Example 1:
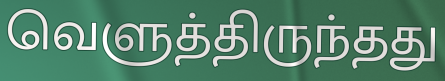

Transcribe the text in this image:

வெளுத்திருந்தது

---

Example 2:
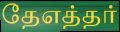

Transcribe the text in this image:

தேஎத்தர்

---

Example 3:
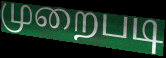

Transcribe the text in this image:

முறைபடி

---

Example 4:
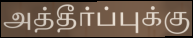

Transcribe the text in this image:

அத்தீர்ப்புக்கு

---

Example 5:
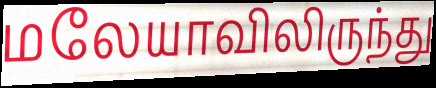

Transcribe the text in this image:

மலேயாவிலிருந்து